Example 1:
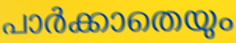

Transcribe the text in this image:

പാർക്കാതെയും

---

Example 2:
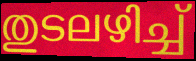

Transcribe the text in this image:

തുടലഴിച്ച്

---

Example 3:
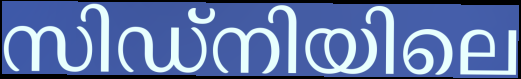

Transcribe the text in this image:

സിഡ്നിയിലെ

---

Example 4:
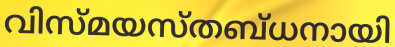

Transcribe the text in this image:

വിസ്മയസ്തബ്ധനായി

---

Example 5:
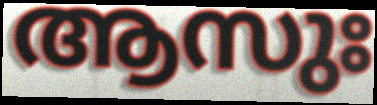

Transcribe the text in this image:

ആസുഃ